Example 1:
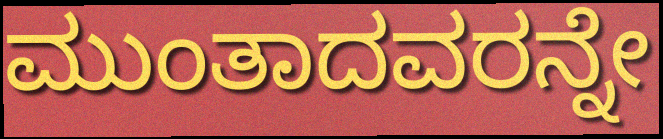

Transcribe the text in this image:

ಮುಂತಾದವರನ್ನೇ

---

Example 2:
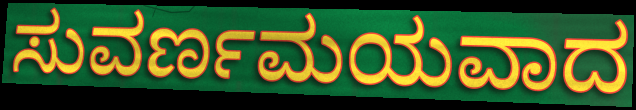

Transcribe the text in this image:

ಸುವರ್ಣಮಯವಾದ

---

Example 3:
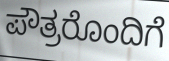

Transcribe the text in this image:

ಪೌತ್ರರೊಂದಿಗೆ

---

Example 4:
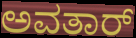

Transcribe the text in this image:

ಅವತಾರ್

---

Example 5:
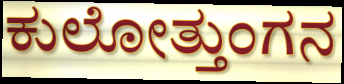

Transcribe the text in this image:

ಕುಲೋತ್ತುಂಗನ